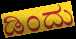
ಡಿಂದು